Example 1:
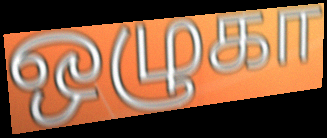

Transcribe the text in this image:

ஒழுகா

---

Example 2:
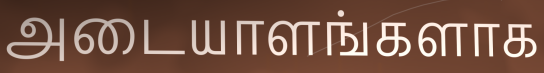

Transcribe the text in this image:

அடையாளங்களாக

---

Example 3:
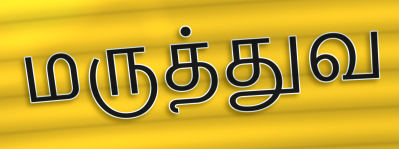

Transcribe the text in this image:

மருத்துவ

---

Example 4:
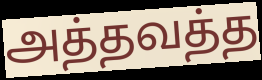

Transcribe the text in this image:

அத்தவத்த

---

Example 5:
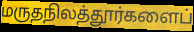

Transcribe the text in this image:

மருதநிலத்தூர்களைப்